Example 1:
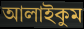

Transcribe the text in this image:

আলাইকুম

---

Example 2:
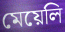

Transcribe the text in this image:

মেয়েলি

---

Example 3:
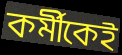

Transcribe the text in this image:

কর্মীকেই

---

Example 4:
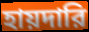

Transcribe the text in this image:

হায়দারি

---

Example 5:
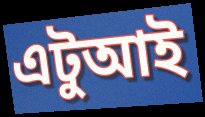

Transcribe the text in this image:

এটুআই